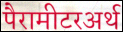
पैरामीटरअर्थ